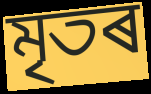
মৃতৰ